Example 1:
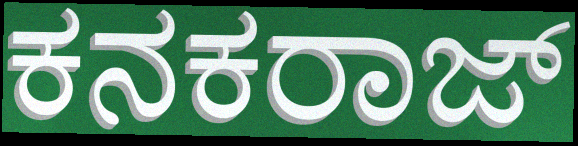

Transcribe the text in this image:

ಕನಕರಾಜ್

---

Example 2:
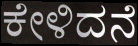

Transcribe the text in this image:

ಕೇಳಿದನೆ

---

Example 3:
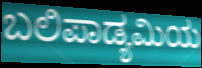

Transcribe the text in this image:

ಬಲಿಪಾಡ್ಯಮಿಯ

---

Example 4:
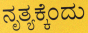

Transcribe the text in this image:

ನೃತ್ಯಕ್ಕೆಂದು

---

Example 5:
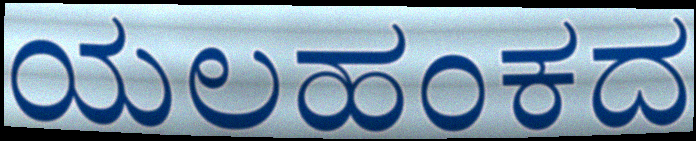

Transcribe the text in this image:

ಯಲಹಂಕದ